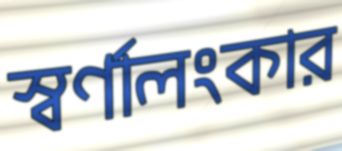
স্বর্ণালংকার